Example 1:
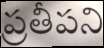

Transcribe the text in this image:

ప్రతీపని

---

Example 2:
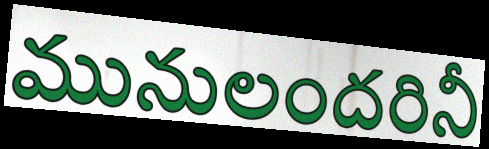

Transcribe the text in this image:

మునులందరినీ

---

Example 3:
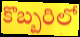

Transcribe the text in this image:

కొబ్బరిలో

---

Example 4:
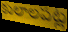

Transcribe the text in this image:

కులాలపట్ల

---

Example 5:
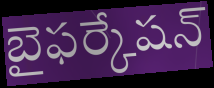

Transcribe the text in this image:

బైఫర్కేషన్